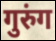
गुरुंग